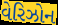
વેરિઝોન